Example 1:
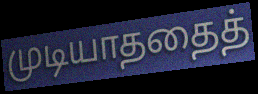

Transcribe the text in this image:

முடியாததைத்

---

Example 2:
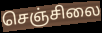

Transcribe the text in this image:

செஞ்சிலை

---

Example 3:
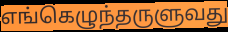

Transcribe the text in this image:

எங்கெழுந்தருளுவது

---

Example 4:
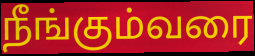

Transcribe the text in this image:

நீங்கும்வரை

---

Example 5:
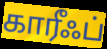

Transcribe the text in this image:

காரீஃப்